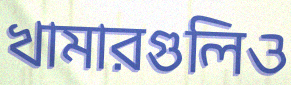
খামারগুলিও